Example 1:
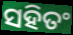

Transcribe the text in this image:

ସହିତଂ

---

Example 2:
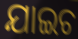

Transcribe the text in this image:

ଯାଇଚ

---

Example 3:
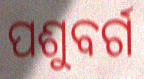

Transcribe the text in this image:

ପଶୁବର୍ଗ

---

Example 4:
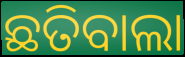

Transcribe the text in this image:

ଛତିବାଲା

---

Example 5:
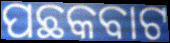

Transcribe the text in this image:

ପଛକବାଟ